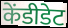
केंडीडेट